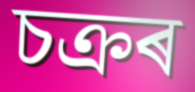
চক্ৰৰ